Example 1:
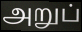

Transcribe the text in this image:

அறுப்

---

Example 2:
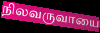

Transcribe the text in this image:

நிலவருவாயை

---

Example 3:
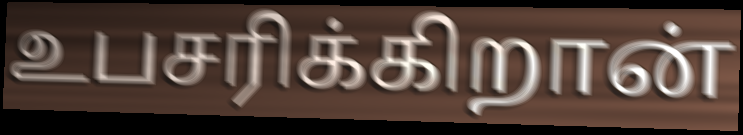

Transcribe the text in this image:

உபசரிக்கிறான்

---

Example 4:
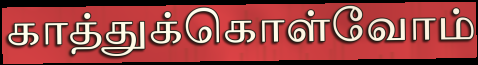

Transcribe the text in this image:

காத்துக்கொள்வோம்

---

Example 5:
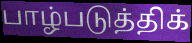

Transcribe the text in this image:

பாழ்படுத்திக்